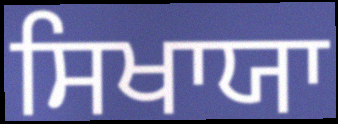
ਸਿਖਾਯਾ